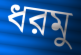
ধরমু